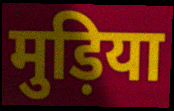
मुड़िया